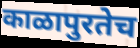
काळापुरतेच